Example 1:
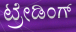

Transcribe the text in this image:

ಟ್ರೇಡಿಂಗ್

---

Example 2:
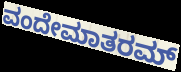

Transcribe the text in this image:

ವಂದೇಮಾತರಮ್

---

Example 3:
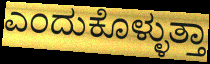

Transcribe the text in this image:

ಎಂದುಕೊಳ್ಳುತ್ತಾ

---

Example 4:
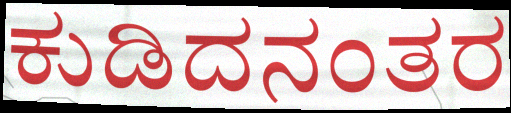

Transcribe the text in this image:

ಕುಡಿದನಂತರ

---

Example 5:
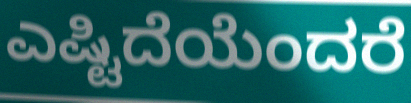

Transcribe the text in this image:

ಎಷ್ಟಿದೆಯೆಂದರೆ